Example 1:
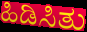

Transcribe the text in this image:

ಹಿಡಿಸಿತು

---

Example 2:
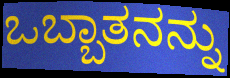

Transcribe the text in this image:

ಒಬ್ಬಾತನನ್ನು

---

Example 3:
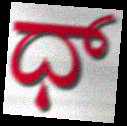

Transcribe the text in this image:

ಧ್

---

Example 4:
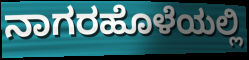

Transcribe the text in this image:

ನಾಗರಹೊಳೆಯಲ್ಲಿ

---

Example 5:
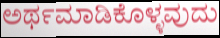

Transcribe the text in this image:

ಅರ್ಥಮಾಡಿಕೊಳ್ಳವುದು